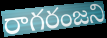
రాగరంజని